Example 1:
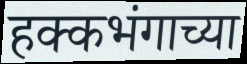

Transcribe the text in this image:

हक्कभंगाच्या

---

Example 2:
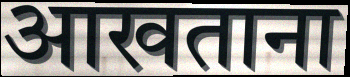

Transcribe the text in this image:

आखताना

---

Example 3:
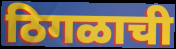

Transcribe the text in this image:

ठिगळाची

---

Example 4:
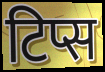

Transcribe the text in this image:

टिप्स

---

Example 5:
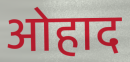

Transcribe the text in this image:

ओहाद